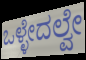
ಒಳ್ಳೇದಲ್ವೇ